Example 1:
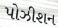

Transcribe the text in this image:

પોઝીશન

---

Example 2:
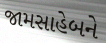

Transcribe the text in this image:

જામસાહેબને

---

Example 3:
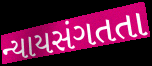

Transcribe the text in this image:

ન્યાયસંગતતા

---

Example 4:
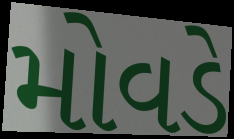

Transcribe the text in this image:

મોવડે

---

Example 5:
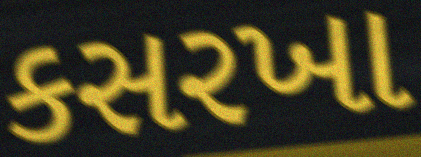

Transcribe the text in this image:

કસરખા